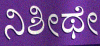
ನಿಶೀಥೇ